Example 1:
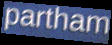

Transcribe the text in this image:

partham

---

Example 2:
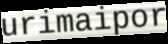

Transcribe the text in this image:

urimaipor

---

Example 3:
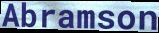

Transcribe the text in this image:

Abramson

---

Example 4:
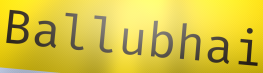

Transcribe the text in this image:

Ballubhai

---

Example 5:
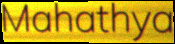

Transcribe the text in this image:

Mahathya